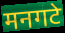
मनगटे